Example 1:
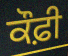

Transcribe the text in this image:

ਕੌਫ਼ੀ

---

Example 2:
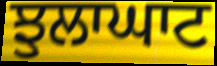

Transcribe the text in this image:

ਝੁਲਾਘਾਟ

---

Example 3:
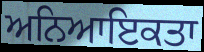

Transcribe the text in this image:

ਅਨਿਆਇਕਤਾ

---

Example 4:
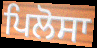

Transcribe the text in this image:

ਪਿਲੋਸਾ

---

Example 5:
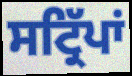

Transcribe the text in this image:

ਸਟ੍ਰਿੱਪਾਂ